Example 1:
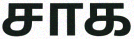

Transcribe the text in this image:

சாக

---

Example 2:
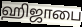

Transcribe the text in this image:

ஹிஜாபை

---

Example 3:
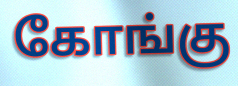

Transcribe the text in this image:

கோங்கு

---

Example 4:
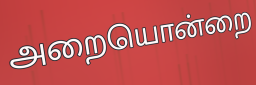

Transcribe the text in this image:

அறையொன்றை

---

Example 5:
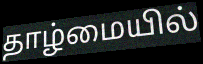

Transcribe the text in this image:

தாழ்மையில்